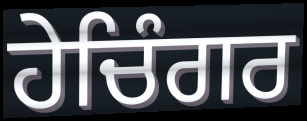
ਹੇਚਿੰਗਰ